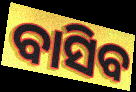
ବାସିବ